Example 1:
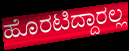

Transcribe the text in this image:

ಹೊರಟಿದ್ದಾರಲ್ಲ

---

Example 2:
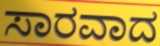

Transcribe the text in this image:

ಸಾರವಾದ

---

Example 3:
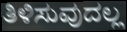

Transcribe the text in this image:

ತಿಳಿಸುವುದಲ್ಲ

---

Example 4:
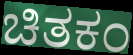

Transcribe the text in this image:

ಚಿತಕಂ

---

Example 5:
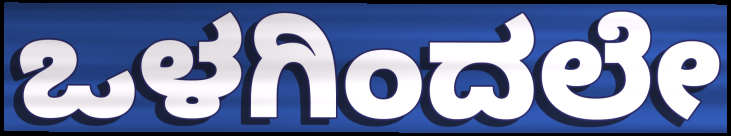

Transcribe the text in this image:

ಒಳಗಿಂದಲೇ